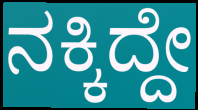
ನಕ್ಕಿದ್ದೇ